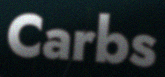
Carbs